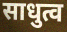
साधुत्व